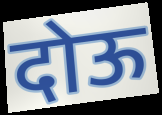
दोऊ